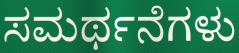
ಸಮರ್ಥನೆಗಳು